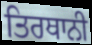
ਤਿਰਥਾਨੀ